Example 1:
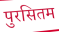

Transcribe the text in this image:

पुरसितम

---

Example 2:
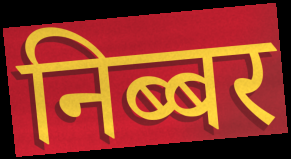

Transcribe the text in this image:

निब्बर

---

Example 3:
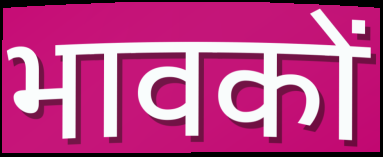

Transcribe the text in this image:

भावकों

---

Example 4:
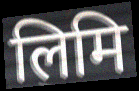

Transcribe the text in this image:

लिमि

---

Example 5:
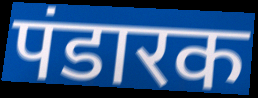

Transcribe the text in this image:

पंडारक